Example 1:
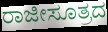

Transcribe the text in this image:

ರಾಜೀಸೂತ್ರದ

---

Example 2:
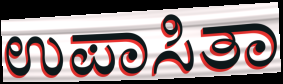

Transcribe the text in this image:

ಉಪಾಸಿತಾ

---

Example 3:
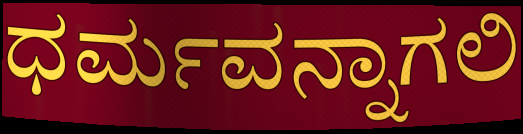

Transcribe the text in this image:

ಧರ್ಮವನ್ನಾಗಲಿ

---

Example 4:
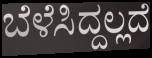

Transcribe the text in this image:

ಬೆಳೆಸಿದ್ದಲ್ಲದೆ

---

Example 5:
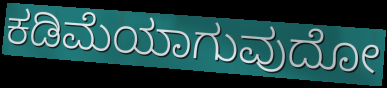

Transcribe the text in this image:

ಕಡಿಮೆಯಾಗುವುದೋ